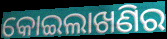
କୋଇଲାଖଣିର